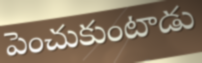
పెంచుకుంటాడు